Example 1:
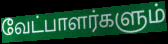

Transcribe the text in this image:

வேட்பாளர்களும்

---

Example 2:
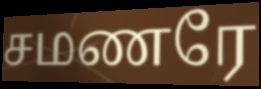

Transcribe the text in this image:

சமணரே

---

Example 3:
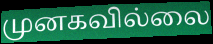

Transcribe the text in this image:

முனகவில்லை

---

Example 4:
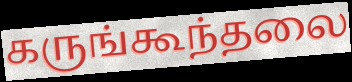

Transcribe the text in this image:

கருங்கூந்தலை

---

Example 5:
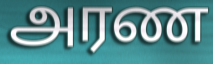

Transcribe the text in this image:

அரண